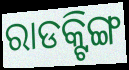
ରାଡକ୍ଟିଙ୍ଗ